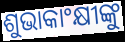
ଶୁଭାକାଂକ୍ଷୀଙ୍କୁ